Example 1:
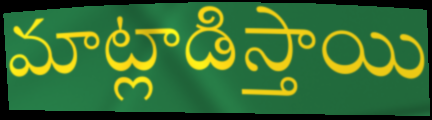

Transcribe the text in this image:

మాట్లాడిస్తాయి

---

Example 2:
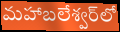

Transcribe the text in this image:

మహాబలేశ్వర్‌లో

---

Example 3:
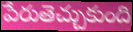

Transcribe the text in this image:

పేరుతెచ్చుకుంది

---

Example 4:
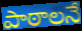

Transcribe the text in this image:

పాఠాలనే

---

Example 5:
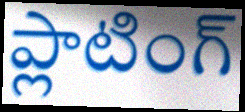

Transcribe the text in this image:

ప్లాటింగ్